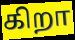
கிறா